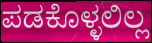
ಪಡಕೊಳ್ಳಲಿಲ್ಲ